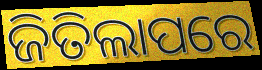
ଜିତିଲାପରେ